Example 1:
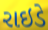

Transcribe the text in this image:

રાઇડે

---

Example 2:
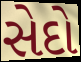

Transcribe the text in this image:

સેદો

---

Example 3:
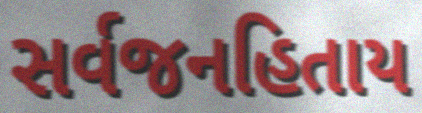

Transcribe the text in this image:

સર્વજનહિતાય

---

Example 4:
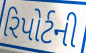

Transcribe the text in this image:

રિપોર્ટની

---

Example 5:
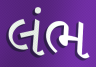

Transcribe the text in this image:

લંભ